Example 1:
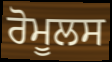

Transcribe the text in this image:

ਰੋਮੂਲਸ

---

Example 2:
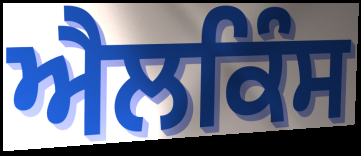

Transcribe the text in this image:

ਐਲਕਿੰਸ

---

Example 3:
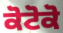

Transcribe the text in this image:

ਕੋਟੋਕੋ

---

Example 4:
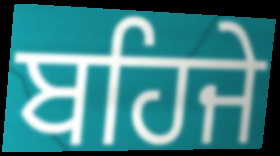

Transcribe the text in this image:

ਬਹਿਜੇ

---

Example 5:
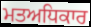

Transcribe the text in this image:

ਮਤਅਧਿਕਾਰ